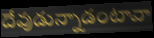
దేవుడున్నాడంటావా